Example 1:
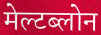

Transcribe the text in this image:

मेल्टब्लोन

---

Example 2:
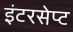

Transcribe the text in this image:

इंटरसेप्ट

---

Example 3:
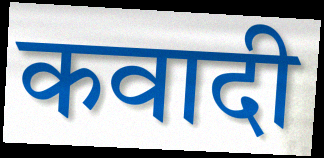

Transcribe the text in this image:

कवादी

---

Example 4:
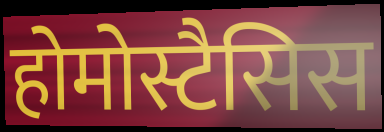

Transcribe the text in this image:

होमोस्टैसिस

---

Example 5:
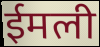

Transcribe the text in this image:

ईमली